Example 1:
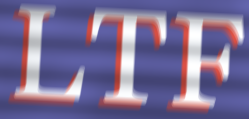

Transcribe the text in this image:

LTF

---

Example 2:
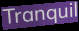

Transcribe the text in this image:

Tranquil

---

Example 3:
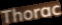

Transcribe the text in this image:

Thorac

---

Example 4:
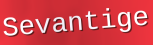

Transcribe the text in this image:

Sevantige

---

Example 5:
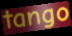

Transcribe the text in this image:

tango